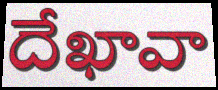
దేఖావా